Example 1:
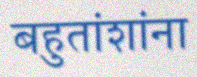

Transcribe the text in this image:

बहुतांशांना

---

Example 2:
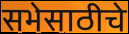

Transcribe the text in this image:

सभेसाठीचे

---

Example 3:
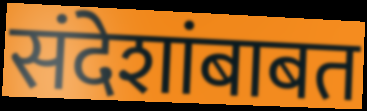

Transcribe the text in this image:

संदेशांबाबत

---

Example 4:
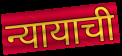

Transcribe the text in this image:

न्यायाची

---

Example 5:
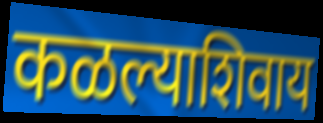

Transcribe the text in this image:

कळल्याशिवाय